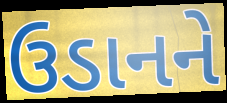
ઉડાનને